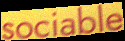
sociable